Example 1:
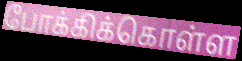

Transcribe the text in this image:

போக்கிக்கொள்ள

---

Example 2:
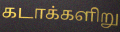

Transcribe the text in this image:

கடாக்களிறு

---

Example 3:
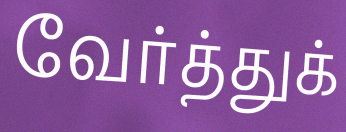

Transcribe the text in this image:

வேர்த்துக்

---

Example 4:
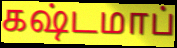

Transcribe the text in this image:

கஷ்டமாப்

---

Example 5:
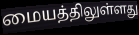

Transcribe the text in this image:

மையத்திலுள்ளது